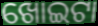
ଖୋଇଟା